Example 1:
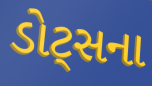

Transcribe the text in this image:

ડોટ્સના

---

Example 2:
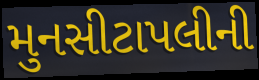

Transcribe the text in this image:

મુનસીટાપલીની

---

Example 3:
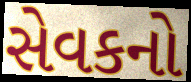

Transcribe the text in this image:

સેવકનો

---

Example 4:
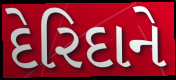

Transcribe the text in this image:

દેરિદાને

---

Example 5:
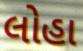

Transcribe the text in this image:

લોહા